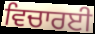
ਵਿਚਾਰਈ